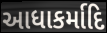
આધાકર્માદિ